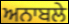
ਅਨਾਬਲੇ